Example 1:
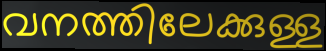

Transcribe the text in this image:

വനത്തിലേക്കുള്ള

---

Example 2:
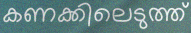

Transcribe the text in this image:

കണക്കിലെടുത്ത്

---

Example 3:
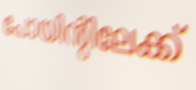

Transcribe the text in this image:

പോയിന്റിലേക്ക്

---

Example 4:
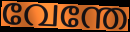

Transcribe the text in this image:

വേന്തേ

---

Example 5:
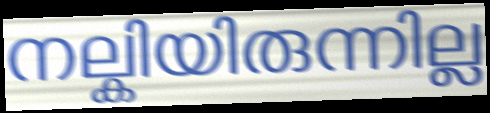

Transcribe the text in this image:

നല്കിയിരുന്നില്ല